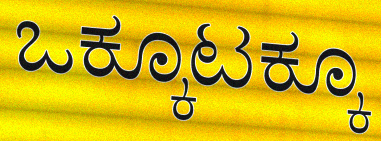
ಒಕ್ಕೂಟಕ್ಕೂ